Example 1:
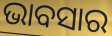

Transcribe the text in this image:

ଭାବସାର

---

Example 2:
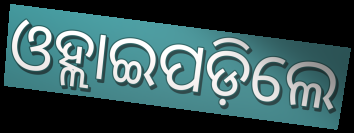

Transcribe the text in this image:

ଓହ୍ଲାଇପଡ଼ିଲେ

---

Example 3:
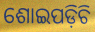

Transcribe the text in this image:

ଶୋଇପଡ଼ିଚି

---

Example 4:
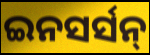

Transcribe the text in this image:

ଇନସର୍ସନ୍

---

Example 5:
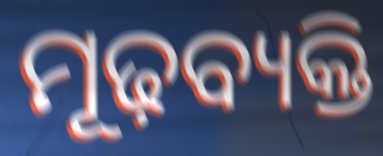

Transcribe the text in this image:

ମୂଢ଼ବ୍ୟକ୍ତି